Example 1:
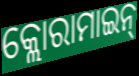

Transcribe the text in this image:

କ୍ଲୋରାମାଇନ୍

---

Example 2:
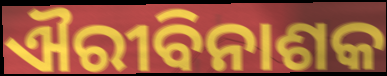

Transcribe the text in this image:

ଐରୀବିନାଶକ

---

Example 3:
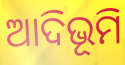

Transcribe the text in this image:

ଆଦିଭୂମି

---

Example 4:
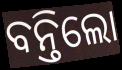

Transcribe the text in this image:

ବନ୍ତିଲୋ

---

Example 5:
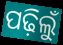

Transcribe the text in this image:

ପଢ଼ିଲୁଁ